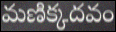
మణిక్కదవం